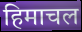
हिमाचल